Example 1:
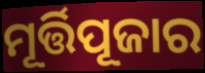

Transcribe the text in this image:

ମୂର୍ତ୍ତିପୂଜାର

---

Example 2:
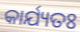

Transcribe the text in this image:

କାର୍ଯ୍ୟତଃ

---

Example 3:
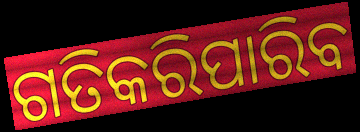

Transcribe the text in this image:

ଗତିକରିପାରିବ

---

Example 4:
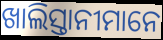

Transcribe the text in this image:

ଖାଲିସ୍ତାନୀମାନେ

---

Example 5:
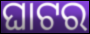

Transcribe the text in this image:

ଘାଟର